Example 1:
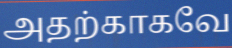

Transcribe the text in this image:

அதற்காகவே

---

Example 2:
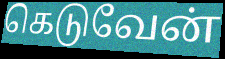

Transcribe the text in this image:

கெடுவேன்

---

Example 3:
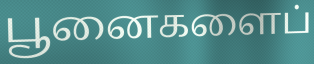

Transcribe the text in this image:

பூனைகளைப்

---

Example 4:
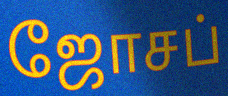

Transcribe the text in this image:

ஜோசப்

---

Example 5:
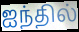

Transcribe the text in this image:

ஐந்தில்